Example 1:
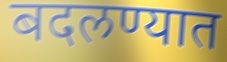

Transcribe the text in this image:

बदलण्यात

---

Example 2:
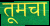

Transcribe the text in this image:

तूमचा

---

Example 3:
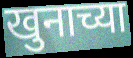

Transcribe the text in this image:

खुनाच्या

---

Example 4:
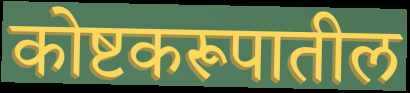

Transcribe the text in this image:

कोष्टकरूपातील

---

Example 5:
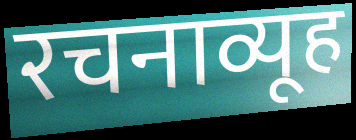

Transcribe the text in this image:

रचनाव्यूह